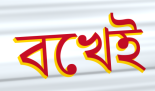
বখেই